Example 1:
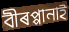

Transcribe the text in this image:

বীৰপ্পানাই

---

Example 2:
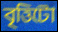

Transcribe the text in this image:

বৃত্তিটো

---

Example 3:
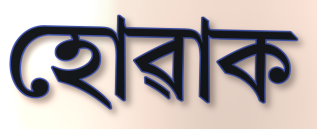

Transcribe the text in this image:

হোৱাক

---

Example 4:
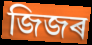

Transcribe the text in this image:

জিজৰ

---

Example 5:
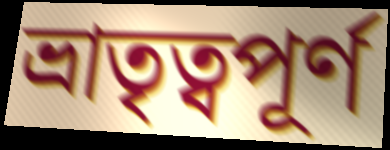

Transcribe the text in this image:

ভ্ৰাতৃত্বপূৰ্ণ